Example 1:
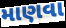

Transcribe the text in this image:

માણવા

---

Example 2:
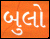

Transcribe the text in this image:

બુલો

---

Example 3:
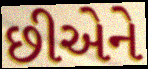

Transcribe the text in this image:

છીએને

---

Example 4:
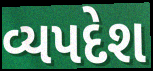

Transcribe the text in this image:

વ્યપદેશ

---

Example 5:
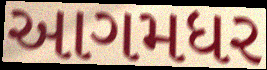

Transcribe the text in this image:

આગમધર